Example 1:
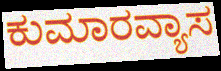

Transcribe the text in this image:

ಕುಮಾರವ್ಯಾಸ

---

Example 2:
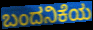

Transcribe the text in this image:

ಬಂದನಿಕೆಯ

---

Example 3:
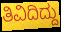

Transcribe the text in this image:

ತಿವಿದಿದ್ದು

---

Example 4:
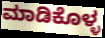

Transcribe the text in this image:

ಮಾಡಿಕೊಳ್ಳ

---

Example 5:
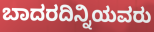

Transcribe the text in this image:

ಬಾದರದಿನ್ನಿಯವರು